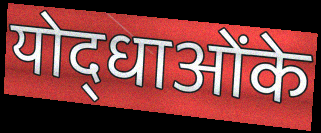
योद्धाओंके